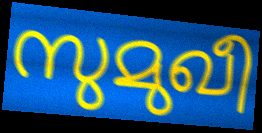
സുമുഖീ